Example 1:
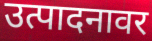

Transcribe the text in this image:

उत्पादनावर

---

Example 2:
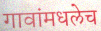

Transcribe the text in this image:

गावांमधलेच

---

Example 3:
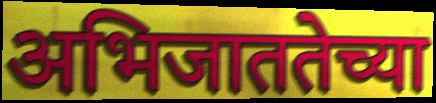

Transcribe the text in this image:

अभिजाततेच्या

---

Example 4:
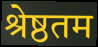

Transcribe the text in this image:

श्रेष्ठतम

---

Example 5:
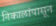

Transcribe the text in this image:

निकालांपासून